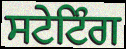
ਸਟੇਟਿੰਗ